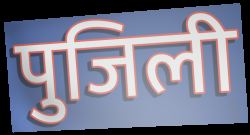
पुजिली